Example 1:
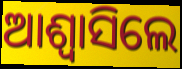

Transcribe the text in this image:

ଆଶ୍ୱାସିଲେ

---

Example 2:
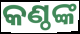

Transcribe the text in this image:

କଣ୍ଠଙ୍କ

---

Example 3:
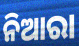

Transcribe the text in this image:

ନିଆରା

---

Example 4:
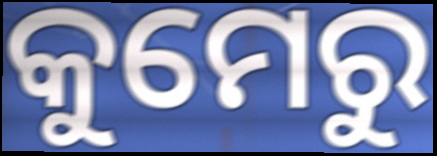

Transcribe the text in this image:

କୁମେରୁ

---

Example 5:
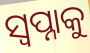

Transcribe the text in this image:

ସ୍ୱପ୍ନାକୁ